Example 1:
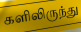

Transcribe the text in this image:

களிலிருந்து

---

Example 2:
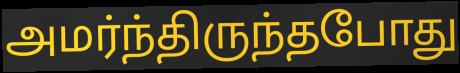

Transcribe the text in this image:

அமர்ந்திருந்தபோது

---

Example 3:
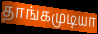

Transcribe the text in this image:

தாங்கமுடியா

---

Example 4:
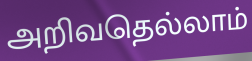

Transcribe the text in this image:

அறிவதெல்லாம்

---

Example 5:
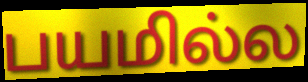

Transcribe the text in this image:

பயமில்ல